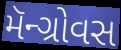
મૅન્ગ્રોવસ